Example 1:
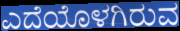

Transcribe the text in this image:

ಎದೆಯೊಳಗಿರುವ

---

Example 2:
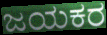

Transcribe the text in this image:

ಜಯಕರ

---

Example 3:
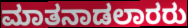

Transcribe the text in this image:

ಮಾತನಾಡಲಾರರು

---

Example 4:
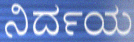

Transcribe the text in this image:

ನಿರ್ದಯ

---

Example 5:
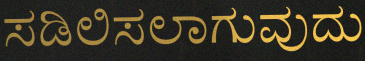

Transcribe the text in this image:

ಸಡಿಲಿಸಲಾಗುವುದು